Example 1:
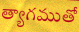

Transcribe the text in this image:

త్యాగముతో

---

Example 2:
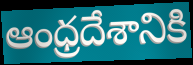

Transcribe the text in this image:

ఆంధ్రదేశానికి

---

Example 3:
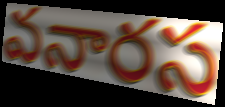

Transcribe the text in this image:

వనారస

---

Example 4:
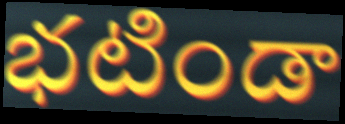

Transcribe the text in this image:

భటిండా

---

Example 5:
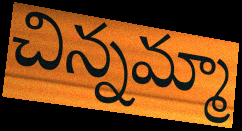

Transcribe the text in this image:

చిన్నమ్మా